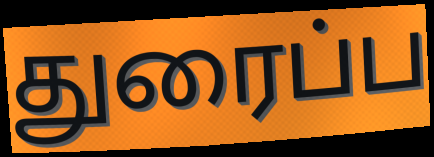
துரைப்ப